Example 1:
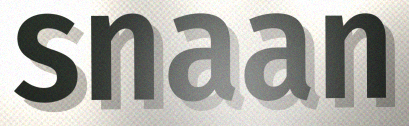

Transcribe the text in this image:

snaan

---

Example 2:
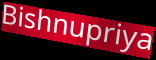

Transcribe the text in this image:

Bishnupriya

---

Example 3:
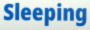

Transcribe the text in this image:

Sleeping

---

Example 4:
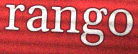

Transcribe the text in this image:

rango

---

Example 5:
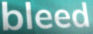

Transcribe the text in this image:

bleed